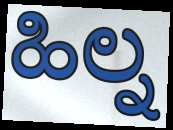
ಹಿಲ್ನ